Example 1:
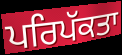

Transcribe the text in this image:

ਪਰਿਪੱਕਤਾ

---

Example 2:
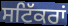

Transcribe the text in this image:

ਸਟਿੱਕਰਾਂ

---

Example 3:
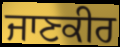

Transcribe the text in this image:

ਜਾਣਕੀਰ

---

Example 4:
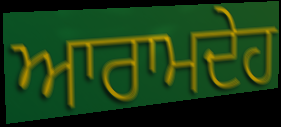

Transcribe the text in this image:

ਆਰਾਮਦੇਹ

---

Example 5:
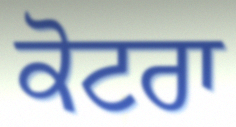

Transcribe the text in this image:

ਕੋਟਰਾ